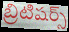
బ్రిటిషర్స్